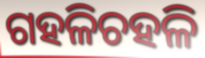
ଗହଳିଚହଳି